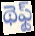
థెఫ్ట్